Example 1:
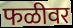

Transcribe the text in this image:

फळीवर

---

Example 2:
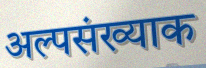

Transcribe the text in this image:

अल्पसंख्याक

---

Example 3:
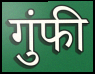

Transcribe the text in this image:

गुंफी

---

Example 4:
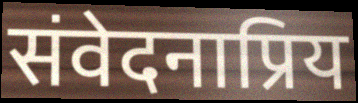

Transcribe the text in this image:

संवेदनाप्रिय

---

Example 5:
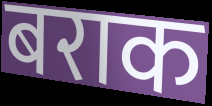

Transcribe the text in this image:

बराक